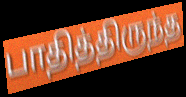
பாதித்திருந்த